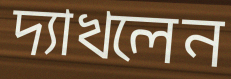
দ্যাখলেন